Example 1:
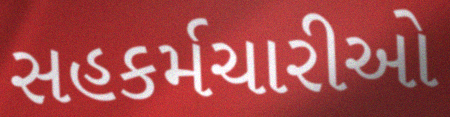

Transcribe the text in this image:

સહકર્મચારીઓ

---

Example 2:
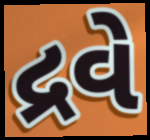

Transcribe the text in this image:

દ્રવે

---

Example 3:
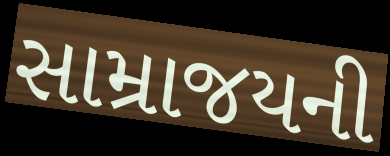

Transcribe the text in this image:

સામ્રાજયની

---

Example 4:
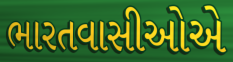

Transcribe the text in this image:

ભારતવાસીઓએ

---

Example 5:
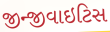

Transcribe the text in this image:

જીન્જીવાઇટિસ